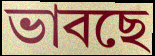
ভাবছে